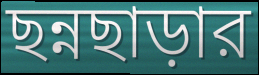
ছন্নছাড়ার